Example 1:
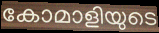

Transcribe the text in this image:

കോമാളിയുടെ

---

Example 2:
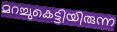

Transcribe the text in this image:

മറച്ചുകെട്ടിയിരുന്ന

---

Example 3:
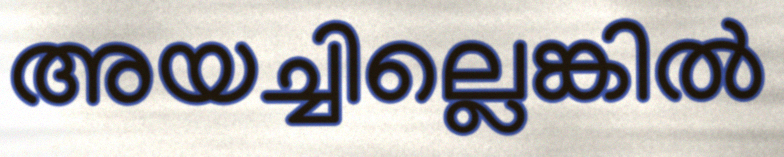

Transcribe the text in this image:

അയച്ചില്ലെങ്കിൽ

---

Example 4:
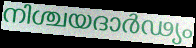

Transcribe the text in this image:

നിശ്ചയദാർഢ്യം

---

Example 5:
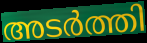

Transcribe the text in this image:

അടർത്തി